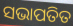
ସଭାପତିତ